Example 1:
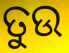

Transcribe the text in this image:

ତୁଉ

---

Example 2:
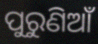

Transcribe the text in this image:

ପୁରୁଣିଆଁ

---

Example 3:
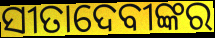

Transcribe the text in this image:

ସୀତାଦେବୀଙ୍କର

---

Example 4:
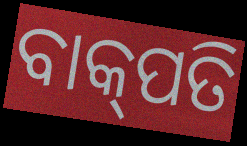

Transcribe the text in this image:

ବାକ୍‌ପତି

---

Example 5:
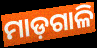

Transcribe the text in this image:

ମାଡ଼ଗାଳି